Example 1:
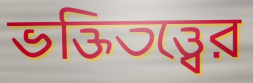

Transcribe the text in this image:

ভক্তিতত্ত্বের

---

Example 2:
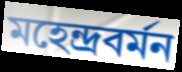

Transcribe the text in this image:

মহেন্দ্রবর্মন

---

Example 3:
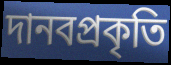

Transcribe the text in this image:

দানবপ্রকৃতি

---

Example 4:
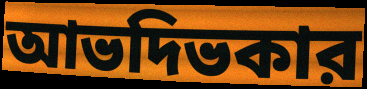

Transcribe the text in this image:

আভদিভকার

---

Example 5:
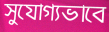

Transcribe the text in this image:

সুযোগ্যভাবে